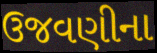
ઉજવણીના